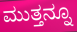
ಮುತ್ತನ್ನೂ